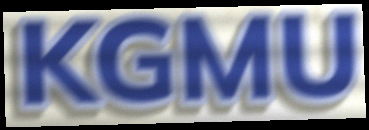
KGMU